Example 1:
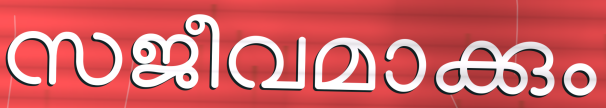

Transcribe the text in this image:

സജീവമാക്കും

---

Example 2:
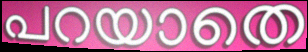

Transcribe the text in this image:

പറയാതെ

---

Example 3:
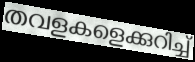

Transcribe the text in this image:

തവളകളെക്കുറിച്ച്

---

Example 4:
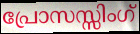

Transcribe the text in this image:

പ്രോസസ്സിംഗ്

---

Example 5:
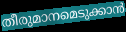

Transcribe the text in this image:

തീരുമാനമെടുക്കാൻ